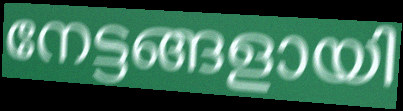
നേട്ടങ്ങളായി